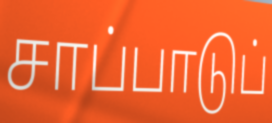
சாப்பாடுப்